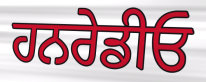
ਹਨਰੇਡੀਓ